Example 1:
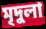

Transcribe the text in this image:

মৃদুলা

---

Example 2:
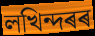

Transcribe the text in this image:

লখিন্দৰৰ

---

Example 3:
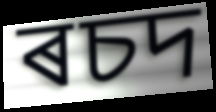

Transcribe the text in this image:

ৰচদ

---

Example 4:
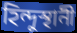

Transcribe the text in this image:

হিন্দুস্থানী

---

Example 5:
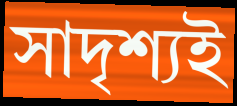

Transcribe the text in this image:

সাদৃশ্যই